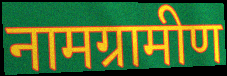
नामग्रामीण